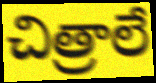
చిత్రాలే